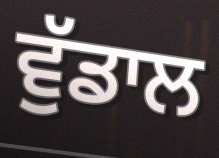
ਵੁੱਡਾਲ